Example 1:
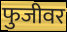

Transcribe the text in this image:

फुजीवर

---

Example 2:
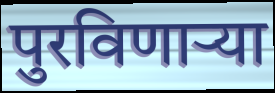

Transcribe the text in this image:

पुरविणाऱ्या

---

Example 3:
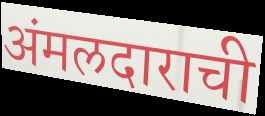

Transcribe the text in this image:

अंमलदाराची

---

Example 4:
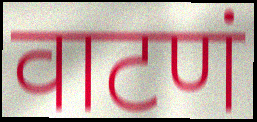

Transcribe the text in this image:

वाटणं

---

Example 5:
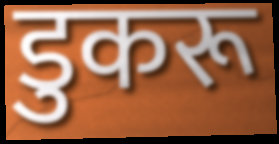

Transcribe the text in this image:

डुकरू